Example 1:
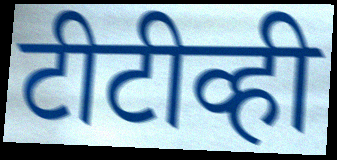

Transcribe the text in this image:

टीटीव्ही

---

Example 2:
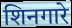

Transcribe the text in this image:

शिनगारे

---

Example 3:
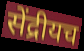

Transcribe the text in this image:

सेंद्रीयच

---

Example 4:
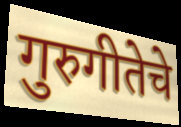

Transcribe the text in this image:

गुरुगीतेचे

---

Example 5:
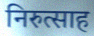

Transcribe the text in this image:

निरुत्साह